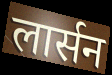
लार्सन